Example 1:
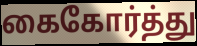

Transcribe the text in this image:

கைகோர்த்து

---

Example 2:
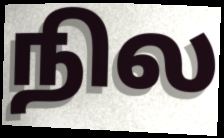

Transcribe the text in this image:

நில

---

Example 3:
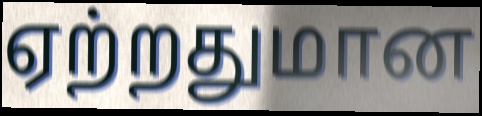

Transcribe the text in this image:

ஏற்றதுமான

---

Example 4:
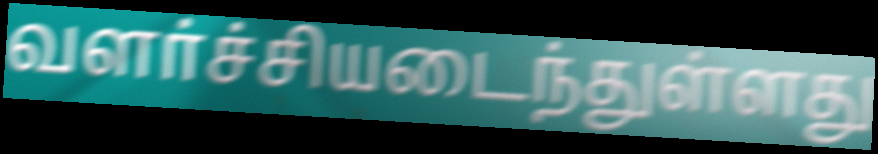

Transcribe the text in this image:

வளர்ச்சியடைந்துள்ளது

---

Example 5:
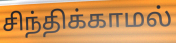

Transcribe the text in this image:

சிந்திக்காமல்